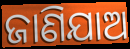
ଜାଣିଯାଅ